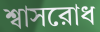
শ্বাসরোধ